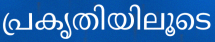
പ്രകൃതിയിലൂടെ